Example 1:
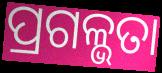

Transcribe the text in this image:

ପ୍ରଗଳ୍ଭତା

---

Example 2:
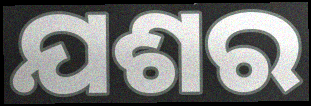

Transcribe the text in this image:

ଯଶର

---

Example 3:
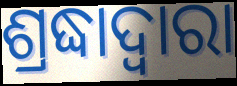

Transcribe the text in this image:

ଶ୍ରଦ୍ଧାଦ୍ୱାରା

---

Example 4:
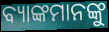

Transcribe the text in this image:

ବ୍ୟାଙ୍କମାନଙ୍କୁ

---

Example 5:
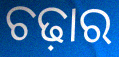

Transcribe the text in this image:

ଚଢ଼ାର